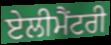
ਏਲੀਮੈਂਟਰੀ